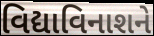
વિદ્યાવિનાશને